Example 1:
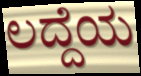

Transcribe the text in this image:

ಲದ್ದೆಯ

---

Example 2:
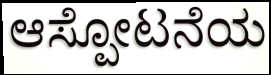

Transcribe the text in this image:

ಆಸ್ಪೋಟನೆಯ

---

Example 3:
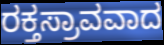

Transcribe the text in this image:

ರಕ್ತಸ್ರಾವವಾದ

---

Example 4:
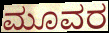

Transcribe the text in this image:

ಮೂವರ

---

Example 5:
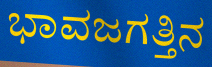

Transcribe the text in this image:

ಭಾವಜಗತ್ತಿನ